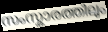
സംസ്കാരത്തിലും